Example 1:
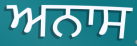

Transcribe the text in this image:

ਅਨਾਸ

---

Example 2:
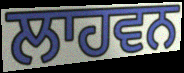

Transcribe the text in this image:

ਲਾਹਵਨ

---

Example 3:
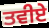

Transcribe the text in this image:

ਤਵੀਏ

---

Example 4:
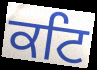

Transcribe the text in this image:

ਕਟਿ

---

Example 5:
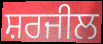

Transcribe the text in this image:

ਸ਼ਰਜੀਲ